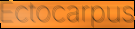
Ectocarpus